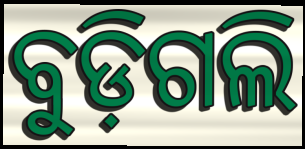
ବୁଡ଼ିଗଲି